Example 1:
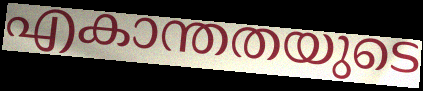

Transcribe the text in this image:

എകാന്തതയുടെ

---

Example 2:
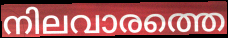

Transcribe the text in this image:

നിലവാരത്തെ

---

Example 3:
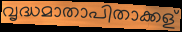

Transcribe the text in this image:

വൃദ്ധമാതാപിതാക്കള്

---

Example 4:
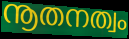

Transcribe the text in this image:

നൂതനത്വം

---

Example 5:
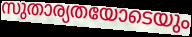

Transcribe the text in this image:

സുതാര്യതയോടെയും